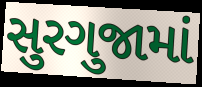
સુરગુજામાં